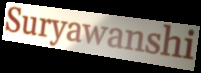
Suryawanshi